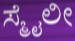
ಸ್ಮೈಲೀ